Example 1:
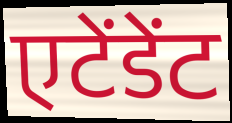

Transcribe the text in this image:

एटेंडेंट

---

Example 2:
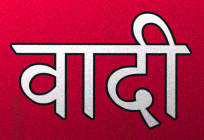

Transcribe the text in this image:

वादी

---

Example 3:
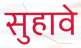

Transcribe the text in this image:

सुहावे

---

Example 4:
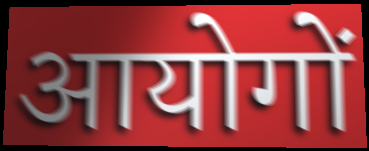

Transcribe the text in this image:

आयोगों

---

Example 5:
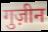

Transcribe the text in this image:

गुज़ीन